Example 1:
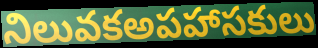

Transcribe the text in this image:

నిలువకఅపహాసకులు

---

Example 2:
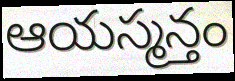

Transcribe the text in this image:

ఆయస్మన్తం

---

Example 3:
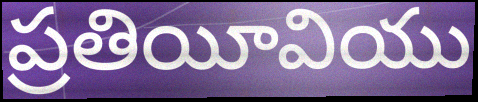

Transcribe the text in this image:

ప్రతియీవియు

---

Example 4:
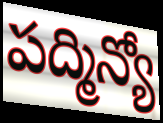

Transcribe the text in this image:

పద్మిన్యో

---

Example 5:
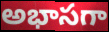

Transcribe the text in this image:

అభాసగా